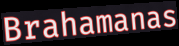
Brahamanas